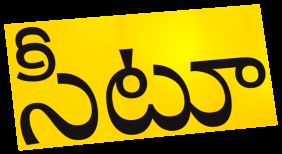
సీటూ